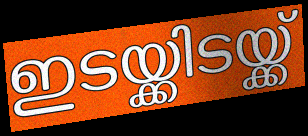
ഇടയ്ക്കിടയ്ക്ക്